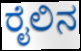
ರೈಲಿನ